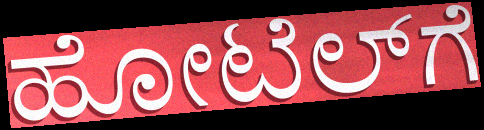
ಹೋಟೆಲ್‌ಗೆ